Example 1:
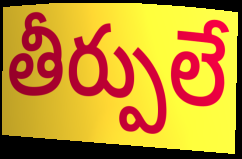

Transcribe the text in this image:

తీర్పులే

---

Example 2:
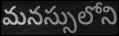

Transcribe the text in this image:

మనస్సులోని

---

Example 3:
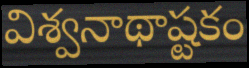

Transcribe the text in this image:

విశ్వనాథాష్టకం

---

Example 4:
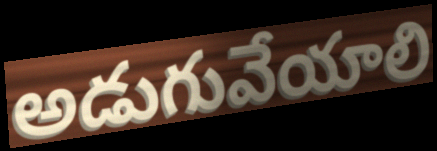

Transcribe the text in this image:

అడుగువేయాలి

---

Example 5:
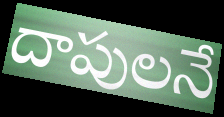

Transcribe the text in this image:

దాపులనే